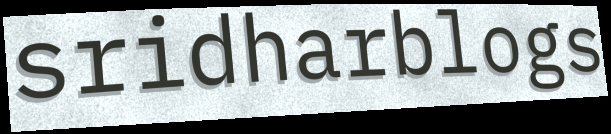
sridharblogs